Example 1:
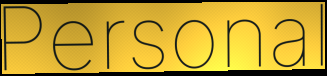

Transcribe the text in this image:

Personal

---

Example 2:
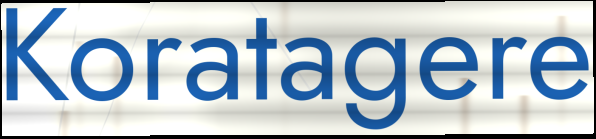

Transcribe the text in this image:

Koratagere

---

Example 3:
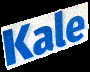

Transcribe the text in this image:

Kale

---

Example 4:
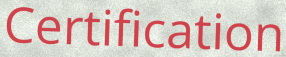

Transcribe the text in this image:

Certification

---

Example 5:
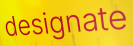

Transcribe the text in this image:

designate